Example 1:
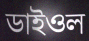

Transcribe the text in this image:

ডাইওল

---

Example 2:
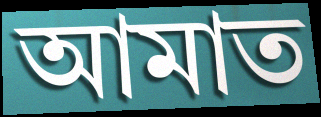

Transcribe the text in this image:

আমাত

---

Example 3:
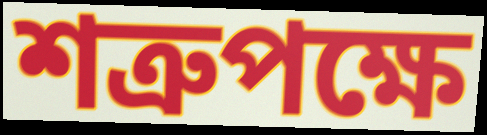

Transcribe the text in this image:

শত্রুপক্ষে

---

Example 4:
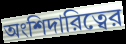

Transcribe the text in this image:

অংশিদারিত্বের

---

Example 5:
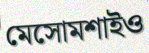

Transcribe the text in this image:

মেসোমশাইও